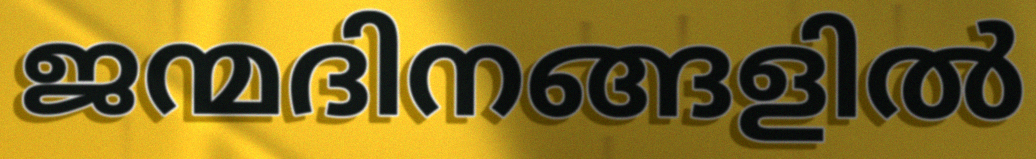
ജന്മദിനങ്ങളിൽ